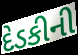
દેડકીની